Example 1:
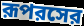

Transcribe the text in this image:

রূপরসের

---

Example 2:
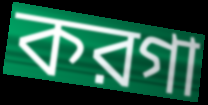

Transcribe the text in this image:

করগা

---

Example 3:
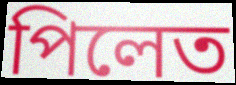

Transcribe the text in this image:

পিলেত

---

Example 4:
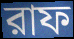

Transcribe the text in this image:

রাফ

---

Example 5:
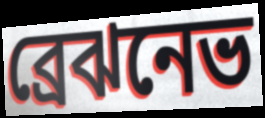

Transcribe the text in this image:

ব্রেঝনেভ